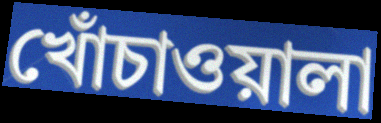
খোঁচাওয়ালা